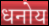
धनोय